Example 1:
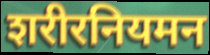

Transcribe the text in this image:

शरीरनियमन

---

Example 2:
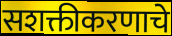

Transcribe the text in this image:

सशक्तीकरणाचे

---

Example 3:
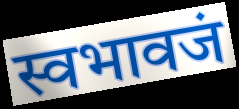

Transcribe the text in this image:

स्वभावजं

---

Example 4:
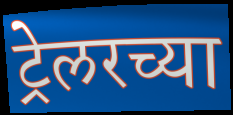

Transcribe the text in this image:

ट्रेलरच्या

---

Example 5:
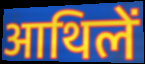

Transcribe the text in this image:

आथिलें